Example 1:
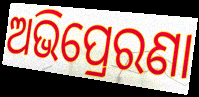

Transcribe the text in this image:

ଅଭିପ୍ରେରଣା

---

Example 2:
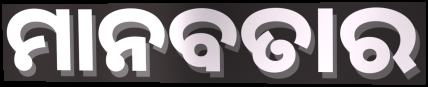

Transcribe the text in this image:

ମାନବତାର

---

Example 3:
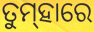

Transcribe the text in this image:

ତୁମ୍‌ହାରେ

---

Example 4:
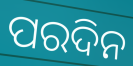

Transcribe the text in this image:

ପରଦିନ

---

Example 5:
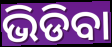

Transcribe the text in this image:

ଭିଡିବା